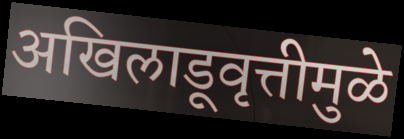
अखिलाडूवृत्तीमुळे